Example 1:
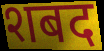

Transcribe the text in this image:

शबद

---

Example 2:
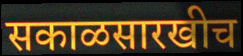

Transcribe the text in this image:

सकाळसारखीच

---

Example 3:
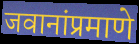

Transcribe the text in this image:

जवानांप्रमाणे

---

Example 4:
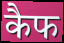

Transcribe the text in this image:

कैफ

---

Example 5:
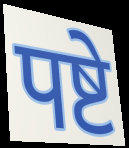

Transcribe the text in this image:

पष्टे